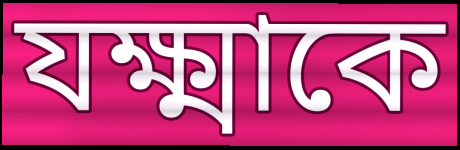
যক্ষ্মাকে